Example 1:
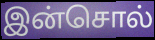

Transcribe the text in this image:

இன்சொல்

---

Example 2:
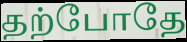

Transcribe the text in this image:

தற்போதே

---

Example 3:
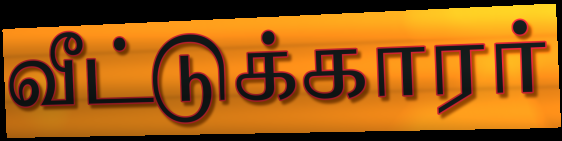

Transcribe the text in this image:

வீட்டுக்காரர்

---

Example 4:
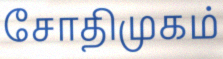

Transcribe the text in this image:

சோதிமுகம்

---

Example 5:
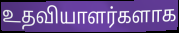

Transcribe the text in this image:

உதவியாளர்களாக